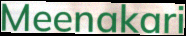
Meenakari